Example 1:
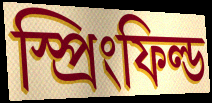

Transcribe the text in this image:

স্প্রিংফিল্ড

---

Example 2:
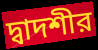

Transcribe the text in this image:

দ্বাদশীর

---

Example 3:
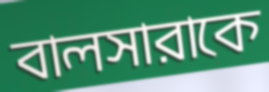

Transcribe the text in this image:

বালসারাকে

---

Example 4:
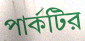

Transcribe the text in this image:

পার্কটির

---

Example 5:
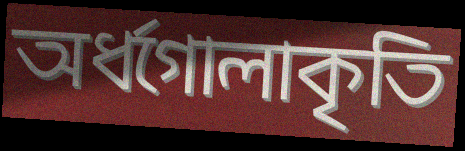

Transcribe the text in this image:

অর্ধগোলাকৃতি